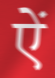
ऐं